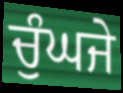
ਚੁੰਘਜੇ